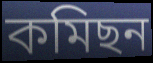
কমিছন